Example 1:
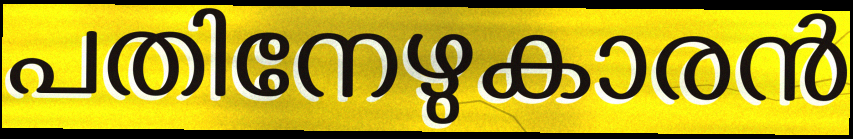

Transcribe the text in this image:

പതിനേഴുകാരൻ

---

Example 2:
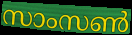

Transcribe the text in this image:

സാംസൺ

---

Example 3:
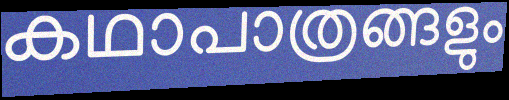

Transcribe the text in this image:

കഥാപാത്രങ്ങളും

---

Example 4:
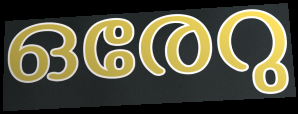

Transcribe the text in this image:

ഒരേറു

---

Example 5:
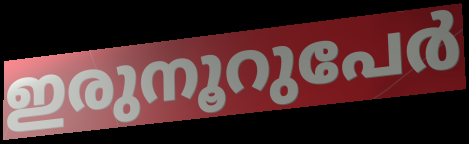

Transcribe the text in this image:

ഇരുനൂറുപേർ